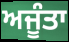
ਅਜੂੰਤਾ